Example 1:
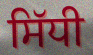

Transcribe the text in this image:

ਸਿੱਧੀ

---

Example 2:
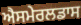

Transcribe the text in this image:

ਐਸਮੇਰਲਡਾਸ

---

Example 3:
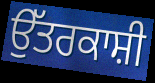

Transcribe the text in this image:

ਉੱਤਰਕਾਸ਼ੀ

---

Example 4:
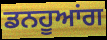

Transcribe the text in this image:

ਡਨਹੂਆਂਗ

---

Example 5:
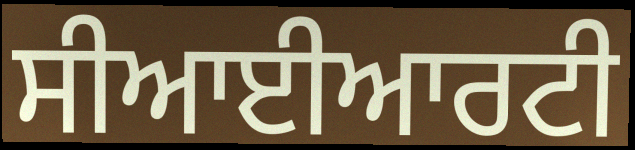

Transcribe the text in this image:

ਸੀਆਈਆਰਟੀ